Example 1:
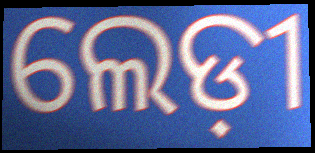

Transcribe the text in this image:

ଲେଡ଼ୀ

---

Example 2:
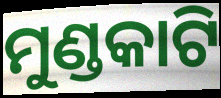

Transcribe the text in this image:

ମୁଣ୍ଡକାଟି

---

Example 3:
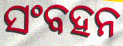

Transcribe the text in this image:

ସଂବହନ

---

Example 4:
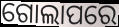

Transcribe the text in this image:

ଗୋଲାପରେ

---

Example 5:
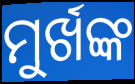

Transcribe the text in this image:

ମୁର୍ଖଙ୍କ